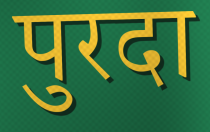
पुरदा